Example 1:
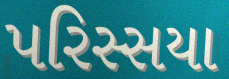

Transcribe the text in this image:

પરિસ્સયા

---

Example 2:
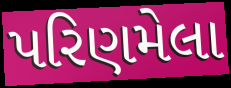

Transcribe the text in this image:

પરિણમેલા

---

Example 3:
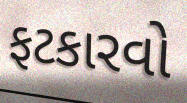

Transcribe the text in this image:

ફટકારવો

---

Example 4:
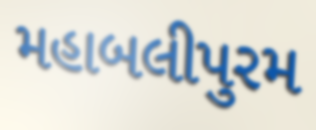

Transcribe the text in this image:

મહાબલીપુરમ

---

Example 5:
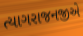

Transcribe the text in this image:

ત્યાગરાજનજીએ